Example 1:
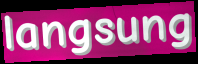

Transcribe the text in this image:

langsung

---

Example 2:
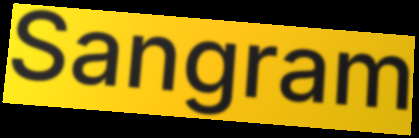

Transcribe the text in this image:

Sangram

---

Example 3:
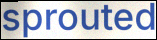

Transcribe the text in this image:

sprouted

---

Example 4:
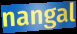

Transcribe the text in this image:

nangal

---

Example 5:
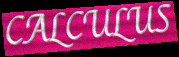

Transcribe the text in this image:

CALCULUS